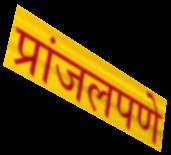
प्रांजलपणे